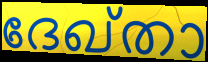
ദേഖ്താ